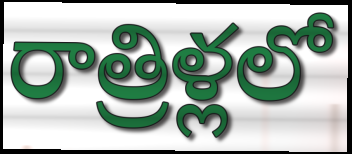
రాత్రిళ్లలో